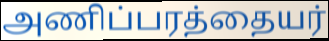
அணிப்பரத்தையர்